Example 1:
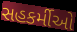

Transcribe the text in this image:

સહકર્મીઓ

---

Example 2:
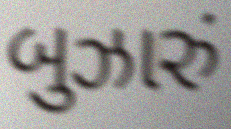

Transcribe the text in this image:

બુઝારું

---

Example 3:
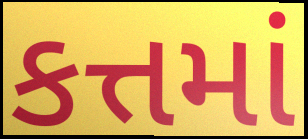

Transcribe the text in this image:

કત્તમાં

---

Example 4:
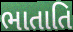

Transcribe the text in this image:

ભાતાતિ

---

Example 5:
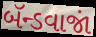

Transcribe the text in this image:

બૅન્ડવાજાં